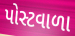
પોસ્ટવાળા